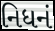
નિધનં